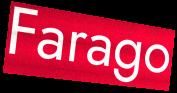
Farago